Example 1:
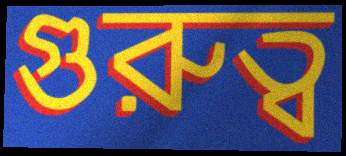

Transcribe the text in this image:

গুরুত্ব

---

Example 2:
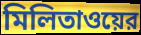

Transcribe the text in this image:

মিলিতাওয়ের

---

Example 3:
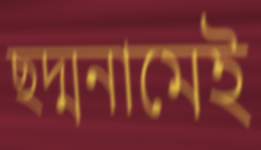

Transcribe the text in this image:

ছদ্মনামেই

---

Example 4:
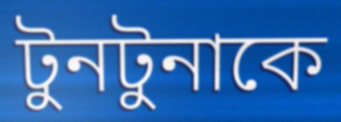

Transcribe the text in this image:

টুনটুনাকে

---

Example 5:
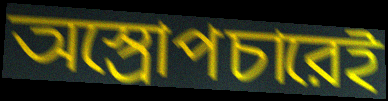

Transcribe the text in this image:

অস্ত্রোপচারেই